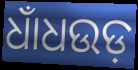
ଧାଁଧଉଡ଼